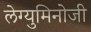
लेग्युमिनोजी